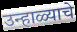
उन्हाळ्याचे